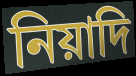
নিয়াদি